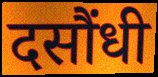
दसौंधी